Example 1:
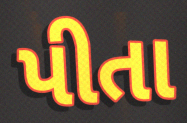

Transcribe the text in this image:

પીતા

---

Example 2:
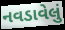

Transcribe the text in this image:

નવડાવેલું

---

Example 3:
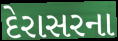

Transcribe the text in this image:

દેરાસરના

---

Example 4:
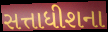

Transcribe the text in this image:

સત્તાધીશના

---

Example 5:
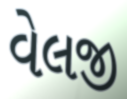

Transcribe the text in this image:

વેલજી